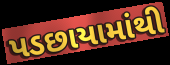
પડછાયામાંથી